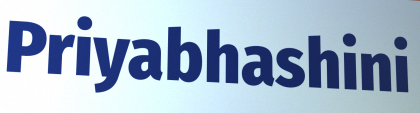
Priyabhashini